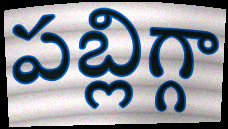
పబ్లిగ్గా